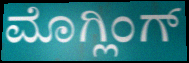
ಮೊಗ್ಲಿಂಗ್